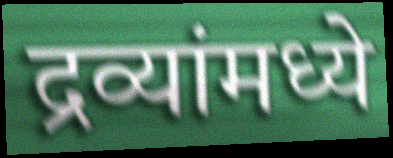
द्रव्यांमध्ये